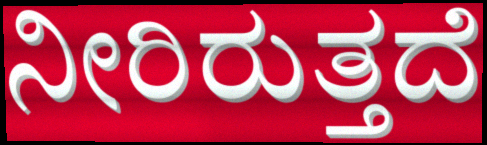
ನೀರಿರುತ್ತದೆ